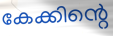
കേക്കിന്റെ